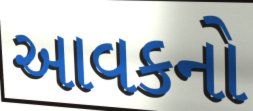
આવકનો